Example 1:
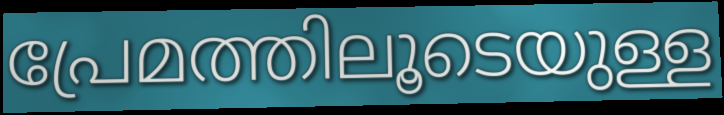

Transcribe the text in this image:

പ്രേമത്തിലൂടെയുള്ള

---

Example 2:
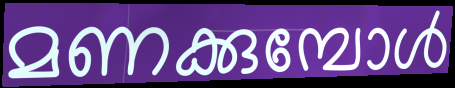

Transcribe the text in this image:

മണക്കുമ്പോൾ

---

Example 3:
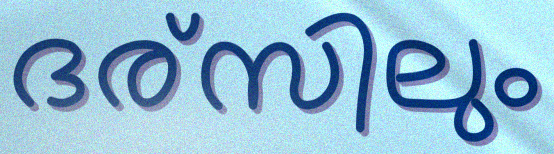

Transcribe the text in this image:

ദര്സിലും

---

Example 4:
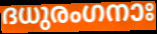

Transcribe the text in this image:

ദധുരംഗനാഃ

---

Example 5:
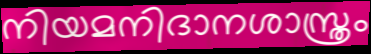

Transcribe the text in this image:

നിയമനിദാനശാസ്ത്രം